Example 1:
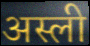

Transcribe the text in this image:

अस्ली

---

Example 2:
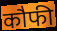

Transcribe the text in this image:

कौफी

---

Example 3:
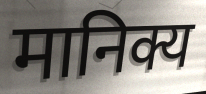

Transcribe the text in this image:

मानिक्य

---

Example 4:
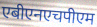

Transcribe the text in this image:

एबीएनएचपीएम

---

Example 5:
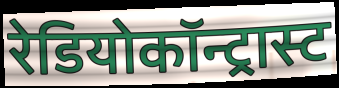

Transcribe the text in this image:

रेडियोकॉन्ट्रास्ट